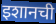
इशानची